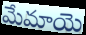
మేమాయె